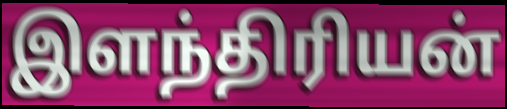
இளந்திரியன்